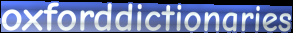
oxforddictionaries